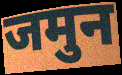
जमुन